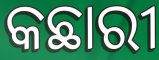
କଛାରୀ